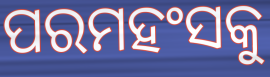
ପରମହଂସକୁ